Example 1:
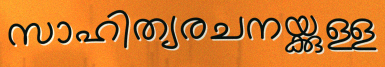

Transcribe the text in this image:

സാഹിത്യരചനയ്ക്കുള്ള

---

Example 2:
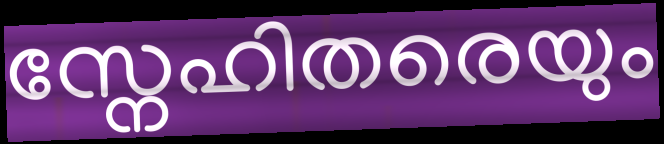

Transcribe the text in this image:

സ്നേഹിതരെയും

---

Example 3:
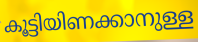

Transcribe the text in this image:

കൂട്ടിയിണക്കാനുള്ള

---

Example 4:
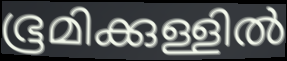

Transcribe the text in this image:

ഭൂമിക്കുള്ളിൽ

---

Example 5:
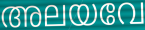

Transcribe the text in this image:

അലയവേ